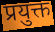
प्रयुक्त